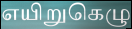
எயிறுகெழு